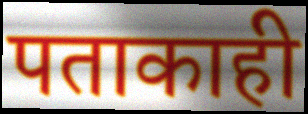
पताकाही